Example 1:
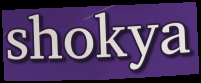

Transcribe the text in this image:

shokya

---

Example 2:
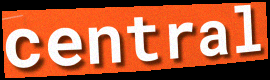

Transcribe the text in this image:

central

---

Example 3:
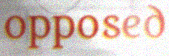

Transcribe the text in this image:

opposed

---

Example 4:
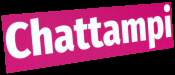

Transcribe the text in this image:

Chattampi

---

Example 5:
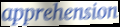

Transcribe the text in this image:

apprehension